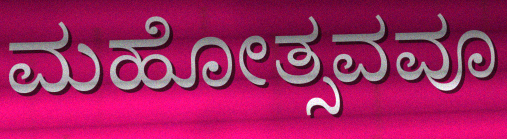
ಮಹೋತ್ಸವವೂ